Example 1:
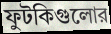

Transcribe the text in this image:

ফুটকিগুলোর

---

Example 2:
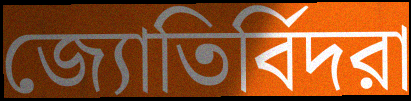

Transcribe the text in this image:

জ্যোতির্বিদরা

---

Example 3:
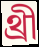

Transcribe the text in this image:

থ্রী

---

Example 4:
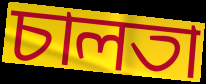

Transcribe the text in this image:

চালতা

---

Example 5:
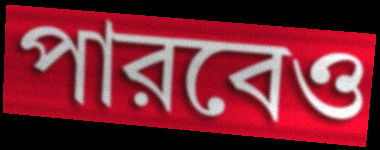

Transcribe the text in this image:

পারবেও